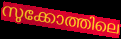
സുക്കോത്തിലെ